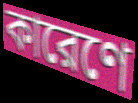
কারেণে